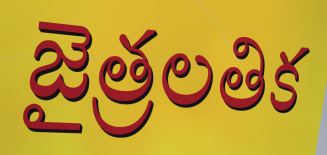
జైత్రలతిక